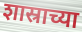
शास्राच्या